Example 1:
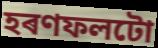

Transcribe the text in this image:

হৰণফলটো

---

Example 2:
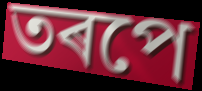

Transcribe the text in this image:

তৰপে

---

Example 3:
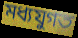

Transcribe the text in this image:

মধ্যযুগত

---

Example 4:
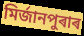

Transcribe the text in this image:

মিৰ্জানপুৰাৰ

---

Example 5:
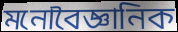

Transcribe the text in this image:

মনোবৈজ্ঞানিক